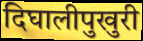
दिघालीपुखुरी